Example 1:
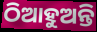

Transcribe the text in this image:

ଠିଆହୁଅନ୍ତି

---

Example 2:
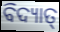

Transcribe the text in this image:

ବିଦ୍ୟାତ୍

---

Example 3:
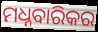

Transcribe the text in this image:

ମଧ୍ନବାରିକର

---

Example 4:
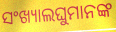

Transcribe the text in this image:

ସଂଖ୍ୟାଲଘୁମାନଙ୍କ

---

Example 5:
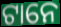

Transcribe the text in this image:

ଟାନେ